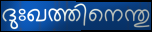
ദുഃഖത്തിനെന്തു